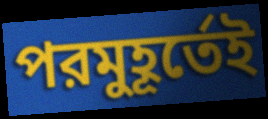
পরমুহূর্তেই